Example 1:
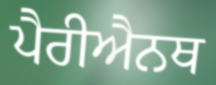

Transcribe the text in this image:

ਪੈਰੀਐਨਥ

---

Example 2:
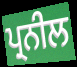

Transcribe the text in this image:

ਪ੍ਰਨੀਲ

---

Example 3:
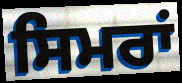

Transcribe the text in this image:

ਸਿਮਰਾਂ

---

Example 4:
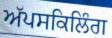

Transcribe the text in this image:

ਅੱਪਸਕਿਲਿੰਗ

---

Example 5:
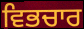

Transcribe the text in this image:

ਵਿਭਚਾਰ